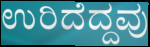
ಉರಿದೆದ್ದವು